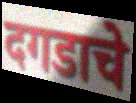
दगडाचे